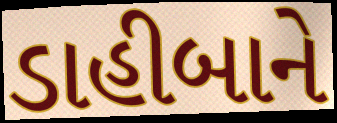
ડાહીબાને